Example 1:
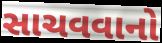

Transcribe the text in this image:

સાચવવાનો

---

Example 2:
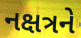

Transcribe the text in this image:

નક્ષત્રને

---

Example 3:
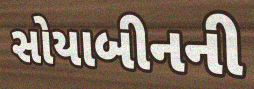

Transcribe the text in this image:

સોયાબીનની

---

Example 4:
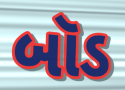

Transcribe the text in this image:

બૉડ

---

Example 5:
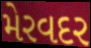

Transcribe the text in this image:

મેરવદર